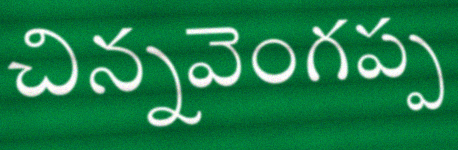
చిన్నవెంగప్ప